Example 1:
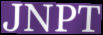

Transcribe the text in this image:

JNPT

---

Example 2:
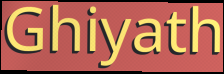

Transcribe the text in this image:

Ghiyath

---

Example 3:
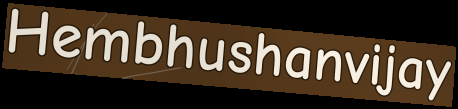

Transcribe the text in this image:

Hembhushanvijay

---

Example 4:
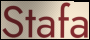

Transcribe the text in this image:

Stafa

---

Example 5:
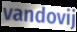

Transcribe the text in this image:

vandovij